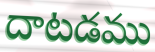
దాటడము